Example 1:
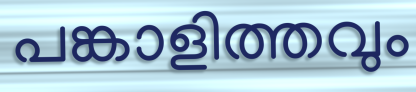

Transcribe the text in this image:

പങ്കാളിത്തവും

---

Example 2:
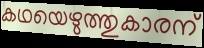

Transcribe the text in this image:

കഥയെഴുത്തുകാരന്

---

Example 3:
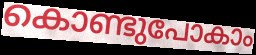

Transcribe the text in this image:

കൊണ്ടുപോകാം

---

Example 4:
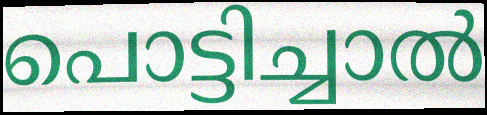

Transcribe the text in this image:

പൊട്ടിച്ചാൽ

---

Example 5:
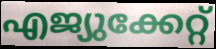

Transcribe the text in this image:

എജ്യുക്കേറ്റ്